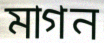
মাগন